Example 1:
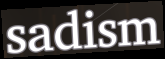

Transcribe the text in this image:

sadism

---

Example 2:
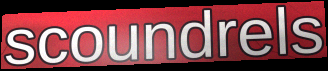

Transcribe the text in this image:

scoundrels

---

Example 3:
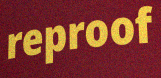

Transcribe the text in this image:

reproof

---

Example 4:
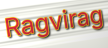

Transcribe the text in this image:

Ragvirag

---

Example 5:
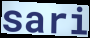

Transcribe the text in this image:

sari